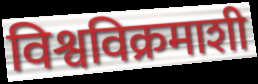
विश्वविक्रमाशी